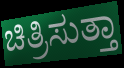
ಚಿತ್ರಿಸುತ್ತಾ